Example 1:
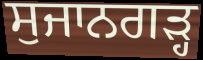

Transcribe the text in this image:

ਸੁਜਾਨਗੜ੍ਹ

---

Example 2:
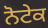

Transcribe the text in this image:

ਨੋਟੇਕ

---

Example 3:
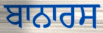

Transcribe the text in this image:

ਬਾਨਾਰਸ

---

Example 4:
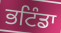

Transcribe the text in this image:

ਭਟਿੰਡਾ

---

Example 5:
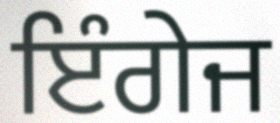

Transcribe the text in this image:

ਇੰਗੇਜ